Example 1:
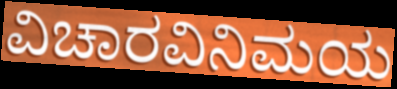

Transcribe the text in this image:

ವಿಚಾರವಿನಿಮಯ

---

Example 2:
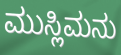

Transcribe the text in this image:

ಮುಸ್ಲಿಮನು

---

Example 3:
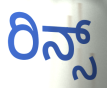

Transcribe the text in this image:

ರಿನ್ಸ್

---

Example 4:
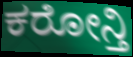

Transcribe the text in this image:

ಕರೋನ್ತಿ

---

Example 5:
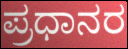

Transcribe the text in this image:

ಪ್ರಧಾನರ